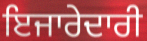
ਇਜਾਰੇਦਾਰੀ